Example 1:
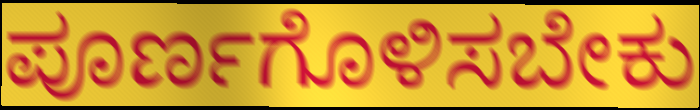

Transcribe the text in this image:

ಪೂರ್ಣಗೊಳಿಸಬೇಕು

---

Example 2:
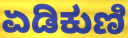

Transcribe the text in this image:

ಏಡಿಕುಣಿ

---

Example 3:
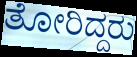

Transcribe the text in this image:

ತೋರಿದ್ದರು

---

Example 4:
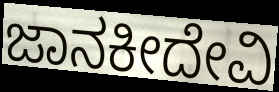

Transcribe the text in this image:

ಜಾನಕೀದೇವಿ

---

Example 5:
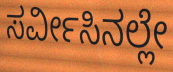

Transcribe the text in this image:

ಸರ್ವೀಸಿನಲ್ಲೇ